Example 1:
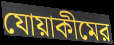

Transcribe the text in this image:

যোয়াকীমের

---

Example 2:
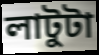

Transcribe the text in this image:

লাটুটা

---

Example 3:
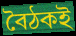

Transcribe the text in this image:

বৈঠকই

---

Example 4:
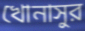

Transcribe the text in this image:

খোনাসুর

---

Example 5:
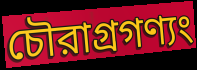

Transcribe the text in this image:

চৌরাগ্রগণ্যং